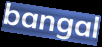
bangal